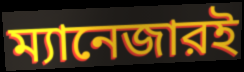
ম্যানেজারই